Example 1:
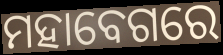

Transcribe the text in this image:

ମହାବେଗରେ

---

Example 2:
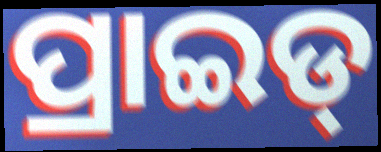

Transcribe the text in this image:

ପ୍ରାଇଡ୍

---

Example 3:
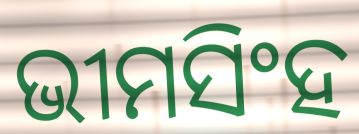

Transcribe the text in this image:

ଭୀମସିଂହ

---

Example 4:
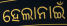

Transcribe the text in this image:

ହେଲାନାଇଁ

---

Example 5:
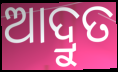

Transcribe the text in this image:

ଆଦ୍ରୁତ